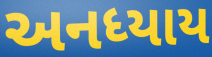
અનધ્યાય